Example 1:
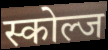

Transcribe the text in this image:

स्कोल्ज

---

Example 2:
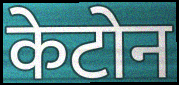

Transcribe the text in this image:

केटोन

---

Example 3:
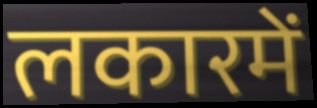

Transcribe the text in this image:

लकारमें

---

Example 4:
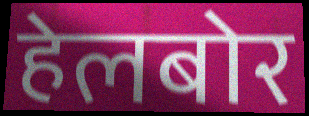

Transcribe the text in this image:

हेलबोर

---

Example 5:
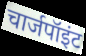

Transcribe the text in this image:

चार्जपॉइंट